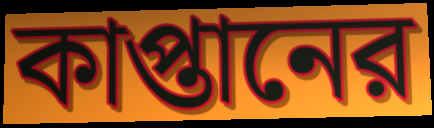
কাপ্তানের